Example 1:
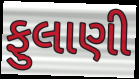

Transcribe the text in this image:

ફુલાણી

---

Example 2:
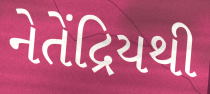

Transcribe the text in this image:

નેતેંદ્રિયથી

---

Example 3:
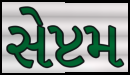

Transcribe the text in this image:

સેપ્ટમ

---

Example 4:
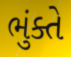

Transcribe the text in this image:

ભુંક્તે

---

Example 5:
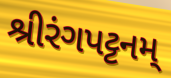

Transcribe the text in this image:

શ્રીરંગપટ્ટનમ્